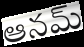
ఆనమ్